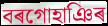
বৰগোহাঞিৰ